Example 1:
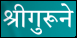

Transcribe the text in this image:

श्रीगुरूने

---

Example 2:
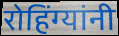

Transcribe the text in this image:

रोहिंग्यांनी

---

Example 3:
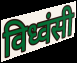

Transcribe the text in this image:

विध्वंसी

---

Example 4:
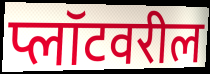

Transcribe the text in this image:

प्लॉटवरील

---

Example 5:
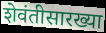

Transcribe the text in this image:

शेवंतीसारख्या